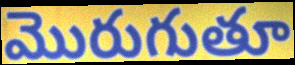
మొరుగుతూ